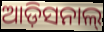
ଆଡ଼ିସନାଲ୍